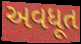
અવધૂત